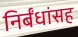
निर्बंधांसह